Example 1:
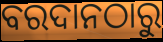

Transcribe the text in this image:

ବରଦାନଠାରୁ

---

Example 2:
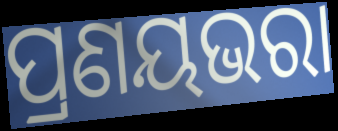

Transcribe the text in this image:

ପ୍ରଣୟଭରା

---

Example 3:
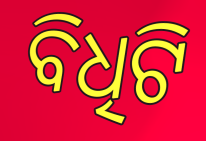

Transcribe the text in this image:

ବିଧିଟି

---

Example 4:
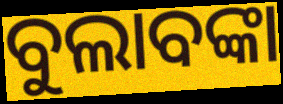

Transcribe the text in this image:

ବୁଲାବଙ୍କା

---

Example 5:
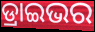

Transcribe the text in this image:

ଡ୍ରାଇଭର